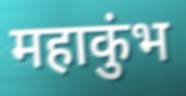
महाकुंभ